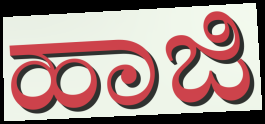
ಹಾಜಿ